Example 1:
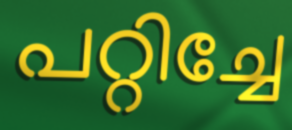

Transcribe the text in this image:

പറ്റിച്ചേ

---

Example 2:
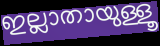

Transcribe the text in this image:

ഇല്ലാതായുള്ളൂ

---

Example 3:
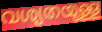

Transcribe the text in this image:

വശ്യതയുള്ള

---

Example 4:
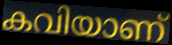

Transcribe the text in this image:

കവിയാണ്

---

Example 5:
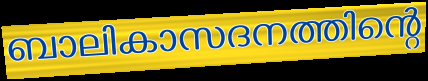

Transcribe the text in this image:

ബാലികാസദനത്തിന്റെ